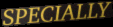
SPECIALLY